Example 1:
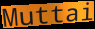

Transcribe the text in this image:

Muttai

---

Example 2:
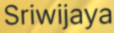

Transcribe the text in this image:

Sriwijaya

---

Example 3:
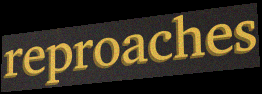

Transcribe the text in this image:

reproaches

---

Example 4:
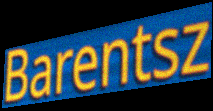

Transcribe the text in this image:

Barentsz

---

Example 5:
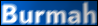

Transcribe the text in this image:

Burmah